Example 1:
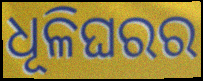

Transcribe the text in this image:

ଧୂଳିଘରର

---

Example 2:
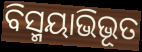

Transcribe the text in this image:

ବିସ୍ମୟାଭିଭୂତ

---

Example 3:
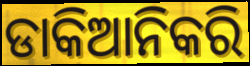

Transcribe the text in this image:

ଡାକିଆନିକରି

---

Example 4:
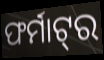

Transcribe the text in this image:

ଫର୍ମାଟ୍‌ର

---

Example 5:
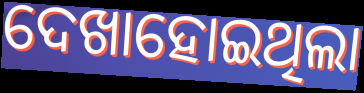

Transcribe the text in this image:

ଦେଖାହୋଇଥିଲା